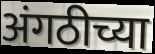
अंगठीच्या